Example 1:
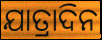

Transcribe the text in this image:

ଯାତ୍ରାଦିନ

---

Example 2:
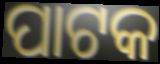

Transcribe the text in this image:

ପାଟକ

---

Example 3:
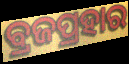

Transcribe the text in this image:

ବ୍ରଜପ୍ରହାର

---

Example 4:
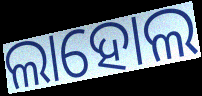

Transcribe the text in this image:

ଲାହୋଲ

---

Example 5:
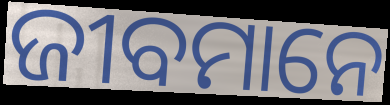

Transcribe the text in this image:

ଜୀବମାନେ